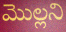
మొల్లని